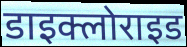
डाइक्लोराइड